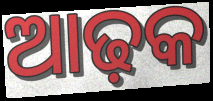
ଆଢ଼କ